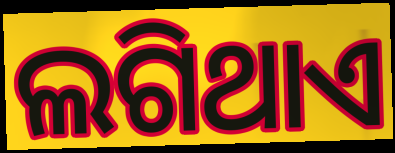
ଲଗିଥାଏ